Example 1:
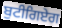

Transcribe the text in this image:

ਬੁਟੀਗਿਏਗ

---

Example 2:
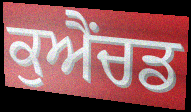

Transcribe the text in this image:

ਕੁਐਂਚਡ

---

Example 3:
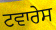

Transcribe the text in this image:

ਟਵਾਰੇਸ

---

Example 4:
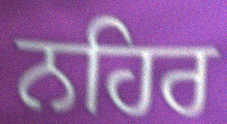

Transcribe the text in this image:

ਨਹਿਰ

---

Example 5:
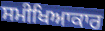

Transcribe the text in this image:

ਸਮੀਖਿਆਕਾਰ